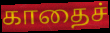
காதைச்